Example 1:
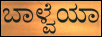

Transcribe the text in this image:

ಬಾಳ್ವೆಯಾ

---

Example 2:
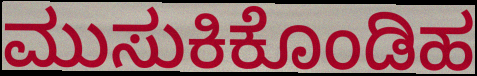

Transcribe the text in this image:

ಮುಸುಕಿಕೊಂಡಿಹ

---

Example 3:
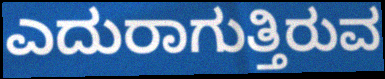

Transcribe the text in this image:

ಎದುರಾಗುತ್ತಿರುವ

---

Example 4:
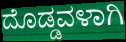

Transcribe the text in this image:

ದೊಡ್ಡವಳಾಗಿ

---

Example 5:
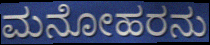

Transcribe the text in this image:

ಮನೋಹರನು